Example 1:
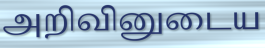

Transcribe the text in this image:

அறிவினுடைய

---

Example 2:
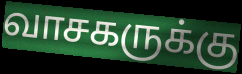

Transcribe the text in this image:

வாசகருக்கு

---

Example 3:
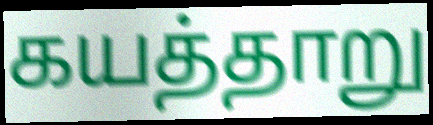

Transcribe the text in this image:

கயத்தாறு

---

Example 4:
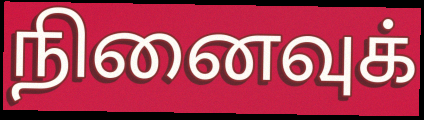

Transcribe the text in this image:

நினைவுக்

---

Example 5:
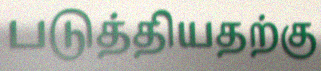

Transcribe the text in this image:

படுத்தியதற்கு